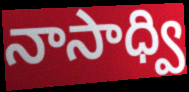
నాసాధ్వి